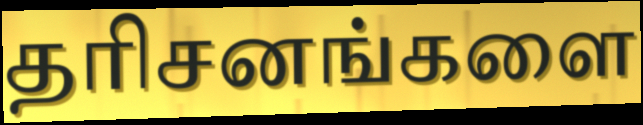
தரிசனங்களை